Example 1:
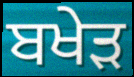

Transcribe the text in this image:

ਬਖੇੜ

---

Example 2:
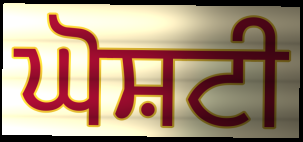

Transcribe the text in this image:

ਘੋਸ਼ਟੀ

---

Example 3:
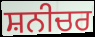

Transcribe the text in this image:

ਸ਼ਨੀਚਰ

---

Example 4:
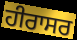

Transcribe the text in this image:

ਹੀਰਾਸਰ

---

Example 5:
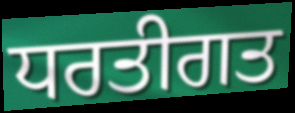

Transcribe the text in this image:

ਧਰਤੀਗਤ